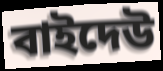
বাইদেউ